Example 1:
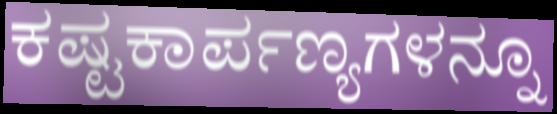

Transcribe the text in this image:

ಕಷ್ಟಕಾರ್ಪಣ್ಯಗಳನ್ನೂ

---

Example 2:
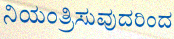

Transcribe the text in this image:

ನಿಯಂತ್ರಿಸುವುದರಿಂದ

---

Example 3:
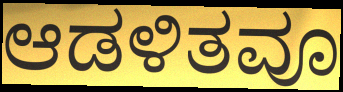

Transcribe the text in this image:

ಆಡಳಿತವೂ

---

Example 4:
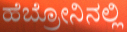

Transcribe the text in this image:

ಹೆಬ್ರೋನಿನಲ್ಲಿ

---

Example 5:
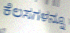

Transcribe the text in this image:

ಕೆಲಸಗಳನ್ನೂ